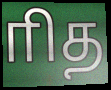
ரித